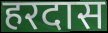
हरदास